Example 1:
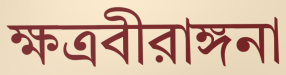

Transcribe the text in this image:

ক্ষত্রবীরাঙ্গনা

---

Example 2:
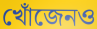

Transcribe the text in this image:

খোঁজেনও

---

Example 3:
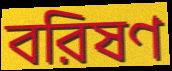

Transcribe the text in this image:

বরিষণ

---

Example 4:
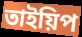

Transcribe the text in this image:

তাইয়িপ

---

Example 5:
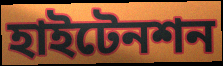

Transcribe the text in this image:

হাইটেনশন